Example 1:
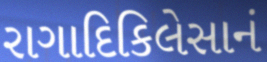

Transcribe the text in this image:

રાગાદિકિલેસાનં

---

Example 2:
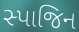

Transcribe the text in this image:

સ્પાજિન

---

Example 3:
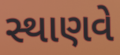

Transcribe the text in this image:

સ્થાણવે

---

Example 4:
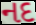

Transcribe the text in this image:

નદ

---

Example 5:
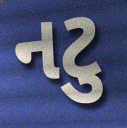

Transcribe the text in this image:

નટુ